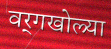
वर्गखोल्या